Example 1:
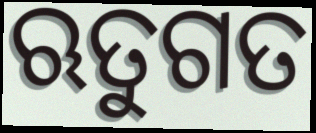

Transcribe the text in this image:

ଋତୁଗତ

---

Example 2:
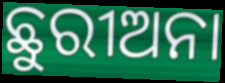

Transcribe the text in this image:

ଛୁରୀଅନା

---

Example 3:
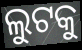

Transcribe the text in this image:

ଲୁଟକୁ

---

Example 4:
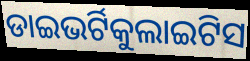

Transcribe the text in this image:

ଡାଇଭର୍ଟିକୁଲାଇଟିସ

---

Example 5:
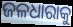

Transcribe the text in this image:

ଜଳଧାରାକୁ